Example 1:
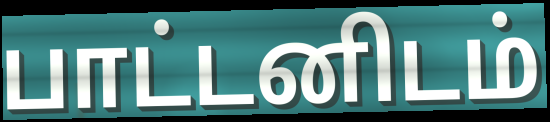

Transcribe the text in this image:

பாட்டனிடம்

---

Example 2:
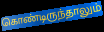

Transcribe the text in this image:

கொண்டிருந்தாலும்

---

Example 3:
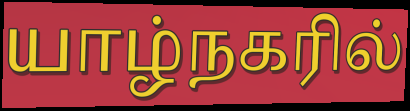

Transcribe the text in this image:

யாழ்நகரில்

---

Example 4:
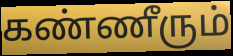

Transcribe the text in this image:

கண்ணீரும்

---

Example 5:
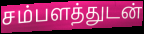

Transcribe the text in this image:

சம்பளத்துடன்